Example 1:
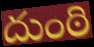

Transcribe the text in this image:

దుంఠి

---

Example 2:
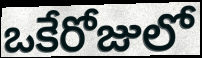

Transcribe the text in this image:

ఒకేరోజులో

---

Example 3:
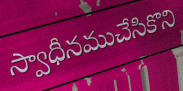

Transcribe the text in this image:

స్వాధీనముచేసికొని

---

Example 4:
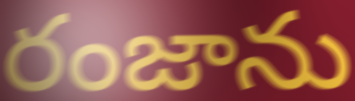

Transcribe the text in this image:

రంజాను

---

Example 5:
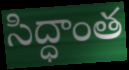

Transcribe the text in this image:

సిద్ధాంత